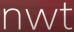
nwt